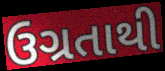
ઉગ્રતાથી